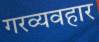
गरव्यवहार